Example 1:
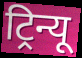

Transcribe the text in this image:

ट्रिन्यू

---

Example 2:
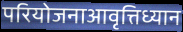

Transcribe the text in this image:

परियोजनाआवृत्तिध्यान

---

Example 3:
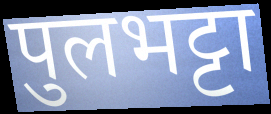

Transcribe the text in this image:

पुलभट्टा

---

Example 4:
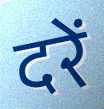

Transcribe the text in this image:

दरें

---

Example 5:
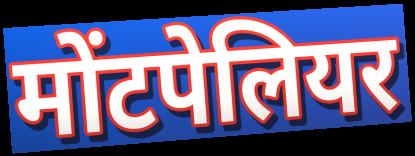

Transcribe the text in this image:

मोंटपेलियर